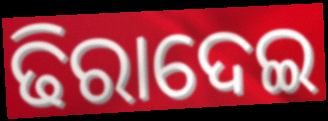
ଢିରାଦେଇ